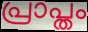
പ്രാപ്തം